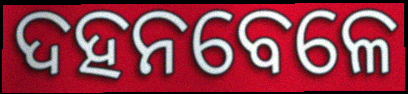
ଦହନବେଳେ